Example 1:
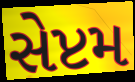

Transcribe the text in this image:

સેપ્ટમ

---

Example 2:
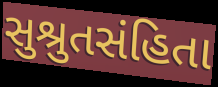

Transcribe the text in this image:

સુશ્રુતસંહિતા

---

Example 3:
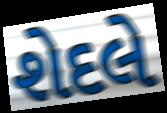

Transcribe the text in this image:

શેદલે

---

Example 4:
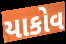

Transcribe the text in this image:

યાકોવ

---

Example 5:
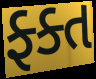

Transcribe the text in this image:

ફ્ક્ત